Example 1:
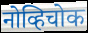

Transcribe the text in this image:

नोव्हिचोक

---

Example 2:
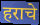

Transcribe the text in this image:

हराचे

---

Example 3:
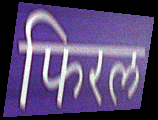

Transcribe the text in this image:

फिरल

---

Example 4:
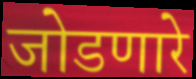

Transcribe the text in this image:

जोडणारे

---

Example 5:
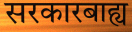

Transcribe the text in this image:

सरकारबाह्य